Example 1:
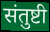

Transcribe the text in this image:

संतुष्टी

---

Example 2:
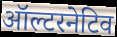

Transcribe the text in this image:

ऑल्टरनेटिव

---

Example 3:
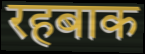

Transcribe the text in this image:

रहबाक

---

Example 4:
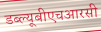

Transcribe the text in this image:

डब्ल्यूबीएचआरसी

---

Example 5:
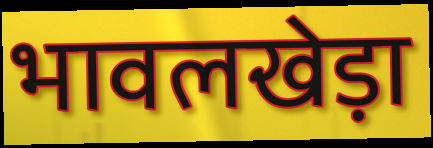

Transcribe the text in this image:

भावलखेड़ा